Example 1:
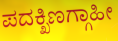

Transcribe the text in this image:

ಪದಕ್ಖಿಣಗ್ಗಾಹೀ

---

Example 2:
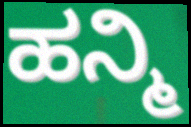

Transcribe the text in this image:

ಹನ್ಮಿ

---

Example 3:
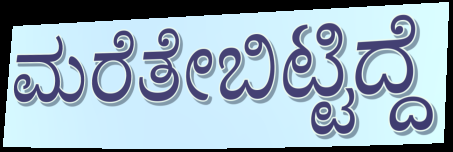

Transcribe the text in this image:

ಮರೆತೇಬಿಟ್ಟಿದ್ದೆ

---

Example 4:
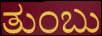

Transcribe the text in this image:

ತುಂಬು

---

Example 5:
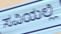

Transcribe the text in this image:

ಸವಿಯಲ್ಲಿ